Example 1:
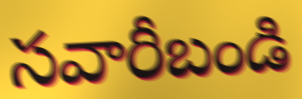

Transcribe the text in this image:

సవారీబండి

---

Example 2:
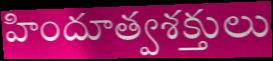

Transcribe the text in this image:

హిందూత్వశక్తులు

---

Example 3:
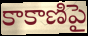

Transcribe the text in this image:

కాకాణిపై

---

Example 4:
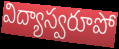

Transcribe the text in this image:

విద్యాస్వరూపో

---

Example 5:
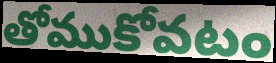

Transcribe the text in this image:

తోముకోవటం